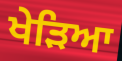
ਖੇੜਿਆ